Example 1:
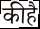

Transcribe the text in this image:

कीहै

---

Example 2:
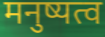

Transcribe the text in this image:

मनुष्यत्‍व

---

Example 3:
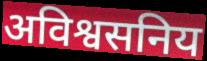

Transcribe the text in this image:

अविश्वसनिय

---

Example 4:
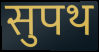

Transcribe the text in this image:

सुपथ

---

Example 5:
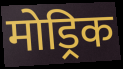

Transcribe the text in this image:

मोड्रिक